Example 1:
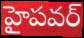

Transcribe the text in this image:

హైపవర్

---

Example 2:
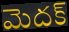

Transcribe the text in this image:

మెదక్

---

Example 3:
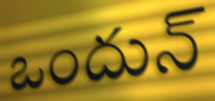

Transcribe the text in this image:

ఒందున్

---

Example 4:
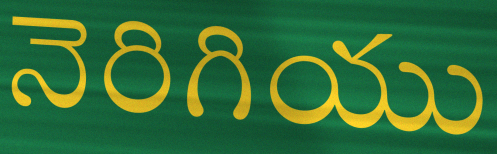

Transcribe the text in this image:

నెరిగియు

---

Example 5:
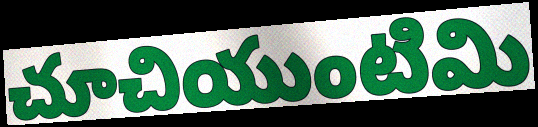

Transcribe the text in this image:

చూచియుంటిమి